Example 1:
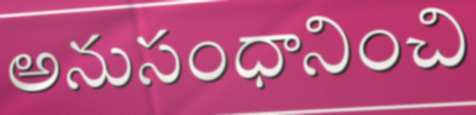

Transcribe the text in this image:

అనుసంధానించి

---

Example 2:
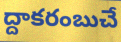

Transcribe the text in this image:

ద్దాకరంబుచే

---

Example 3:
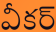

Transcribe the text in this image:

వీకర్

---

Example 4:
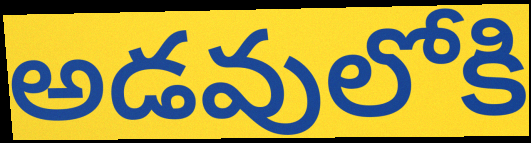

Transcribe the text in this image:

అడవులోకి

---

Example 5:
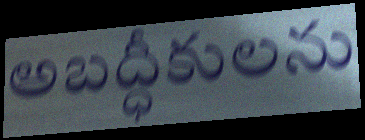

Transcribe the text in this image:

అబద్ధీకులను